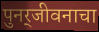
पुनर्जीवनाचा